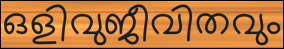
ഒളിവുജീവിതവും